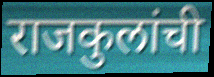
राजकुलांची